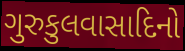
ગુરુકુલવાસાદિનો